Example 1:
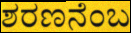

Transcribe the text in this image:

ಶರಣನೆಂಬ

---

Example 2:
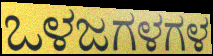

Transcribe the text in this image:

ಒಳಜಗಳಗಳ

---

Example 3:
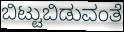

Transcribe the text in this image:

ಬಿಟ್ಟುಬಿಡುವಂತೆ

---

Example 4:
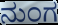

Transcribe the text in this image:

ನುಂಗ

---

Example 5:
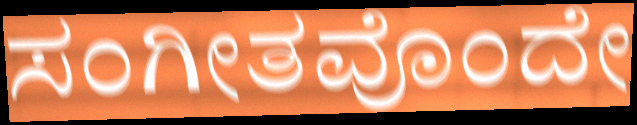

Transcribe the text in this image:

ಸಂಗೀತವೊಂದೇ